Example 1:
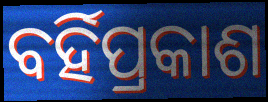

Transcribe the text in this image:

ବର୍ହିପ୍ରକାଶ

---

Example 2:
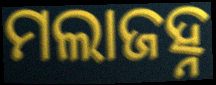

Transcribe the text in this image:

ମଲାଜହ୍ନ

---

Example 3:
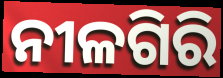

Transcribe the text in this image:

ନୀଳଗିରି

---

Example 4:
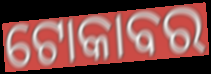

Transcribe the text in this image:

ଟୋକାବର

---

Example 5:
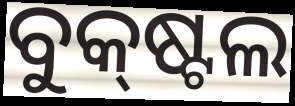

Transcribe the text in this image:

ବୁକ୍‌ଷ୍ଟଲ